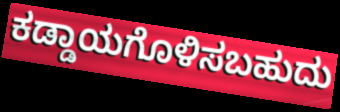
ಕಡ್ಡಾಯಗೊಳಿಸಬಹುದು